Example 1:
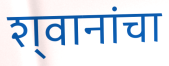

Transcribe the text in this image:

श्वानांचा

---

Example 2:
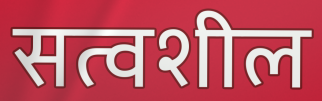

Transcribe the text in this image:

सत्वशील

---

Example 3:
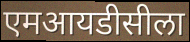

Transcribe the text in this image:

एमआयडीसीला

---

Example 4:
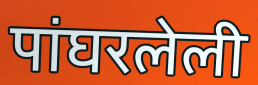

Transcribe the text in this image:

पांघरलेली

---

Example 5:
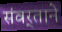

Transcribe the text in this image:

संवर्ताने